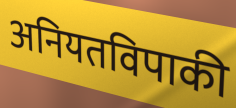
अनियतविपाकी